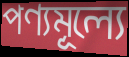
পণ্যমূল্যে